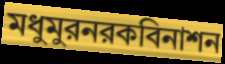
মধুমুরনরকবিনাশন